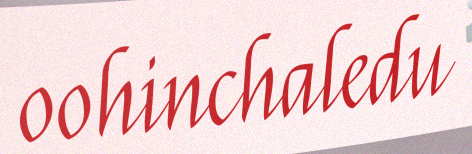
oohinchaledu